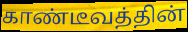
காண்டீவத்தின்